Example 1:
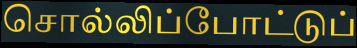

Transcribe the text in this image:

சொல்லிப்போட்டுப்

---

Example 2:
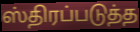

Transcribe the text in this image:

ஸ்திரப்படுத்த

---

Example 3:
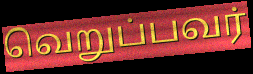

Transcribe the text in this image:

வெறுப்பவர்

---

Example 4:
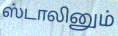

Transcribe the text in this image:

ஸ்டாலினும்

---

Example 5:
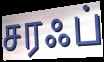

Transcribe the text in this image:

சரஃப்